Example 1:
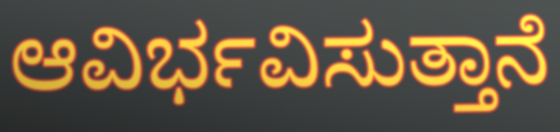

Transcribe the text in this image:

ಆವಿರ್ಭವಿಸುತ್ತಾನೆ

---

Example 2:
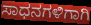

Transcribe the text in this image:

ಸಾಧನಗಳಿಗಾಗಿ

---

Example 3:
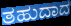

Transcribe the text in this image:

ತಹುದಾದ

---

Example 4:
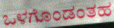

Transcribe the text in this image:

ಒಳಗೊಂಡಂತಹ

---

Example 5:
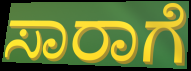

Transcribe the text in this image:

ಸಾರಾಗೆ